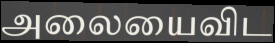
அலையைவிட